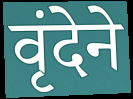
वृंदेने